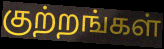
குற்றங்கள்